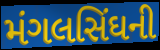
મંગલસિંઘની